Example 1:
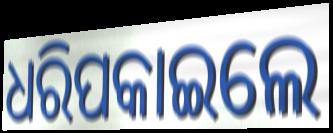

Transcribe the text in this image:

ଧରିପକାଇଲେ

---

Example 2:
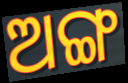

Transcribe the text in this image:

ଅଙ୍ଗ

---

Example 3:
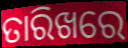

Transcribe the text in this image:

ତାରିଖରେ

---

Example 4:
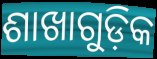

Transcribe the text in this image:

ଶାଖାଗୁଡ଼ିକ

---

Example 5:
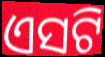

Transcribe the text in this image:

ଏସଟି